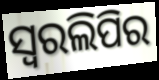
ସ୍ୱରଲିପିର